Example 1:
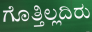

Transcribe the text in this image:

ಗೊತ್ತಿಲ್ಲದಿರು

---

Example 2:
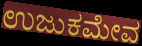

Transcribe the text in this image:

ಉಜುಕಮೇವ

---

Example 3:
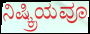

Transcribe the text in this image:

ನಿಷ್ಕ್ರಿಯವೂ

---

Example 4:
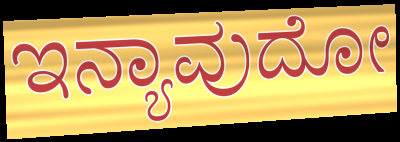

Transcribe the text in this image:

ಇನ್ಯಾವುದೋ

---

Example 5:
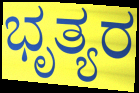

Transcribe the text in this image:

ಭೃತ್ಯರ